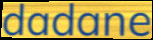
dadane